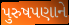
પુરુષપણાને